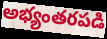
అభ్యంతరపడి